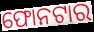
ଫୋନଟାର